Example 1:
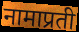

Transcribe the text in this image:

नामाप्रती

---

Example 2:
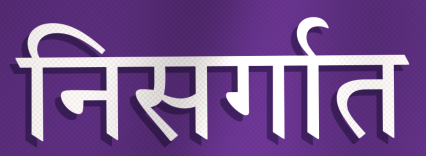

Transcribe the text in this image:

निसर्गात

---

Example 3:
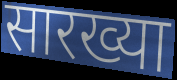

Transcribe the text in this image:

सारख्या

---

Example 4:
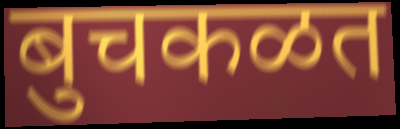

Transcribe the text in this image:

बुचकळत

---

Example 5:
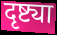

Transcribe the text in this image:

दृष्ट्या